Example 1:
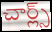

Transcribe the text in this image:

చార్ల్స్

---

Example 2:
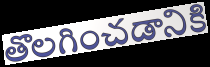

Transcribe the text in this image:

తొలగించడానికి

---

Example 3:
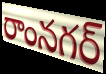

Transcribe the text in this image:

రాంనగర్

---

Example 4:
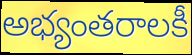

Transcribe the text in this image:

అభ్యంతరాలకీ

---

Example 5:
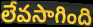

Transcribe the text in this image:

లేవసాగింది